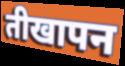
तीखापन